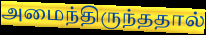
அமைந்திருந்ததால்